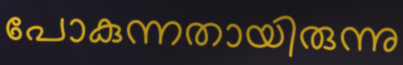
പോകുന്നതായിരുന്നു